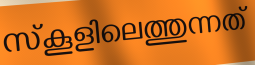
സ്‌കൂളിലെത്തുന്നത്